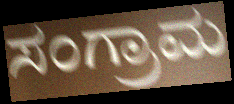
ಸಂಗ್ರಾಮ